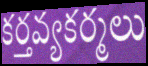
కర్తవ్యకర్మలు